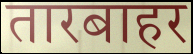
तारबाहर